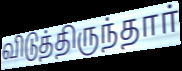
விடுத்திருந்தார்